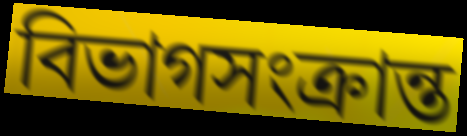
বিভাগসংক্রান্ত